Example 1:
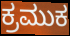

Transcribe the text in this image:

ಕ್ರಮುಕ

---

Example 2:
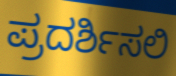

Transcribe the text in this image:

ಪ್ರದರ್ಶಿಸಲಿ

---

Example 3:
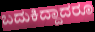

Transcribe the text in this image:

ಬದುಕಿದ್ದಾದರೂ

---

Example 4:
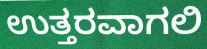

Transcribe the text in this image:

ಉತ್ತರವಾಗಲಿ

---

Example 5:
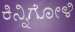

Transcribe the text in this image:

ಕಿನ್ನಿಗೋಳಿ